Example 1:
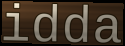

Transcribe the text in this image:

idda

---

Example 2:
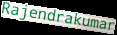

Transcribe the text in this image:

Rajendrakumar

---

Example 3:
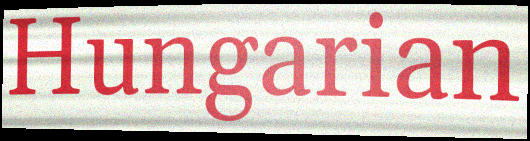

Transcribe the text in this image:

Hungarian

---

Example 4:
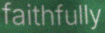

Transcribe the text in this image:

faithfully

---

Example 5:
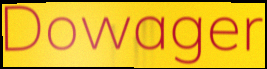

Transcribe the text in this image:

Dowager